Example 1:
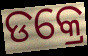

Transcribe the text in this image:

ଡକ୍ରେ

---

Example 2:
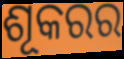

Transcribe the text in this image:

ଶୂକରର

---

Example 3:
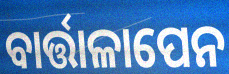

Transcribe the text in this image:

ବାର୍ତ୍ତାଳାପେନ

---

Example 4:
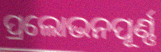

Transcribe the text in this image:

ପ୍ରଲୋଭନପୂର୍ଣ୍ଣ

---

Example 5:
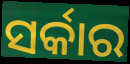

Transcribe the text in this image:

ସର୍କାର